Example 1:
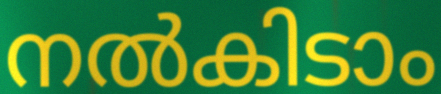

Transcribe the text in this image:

നൽകിടാം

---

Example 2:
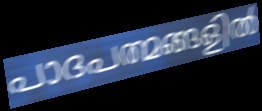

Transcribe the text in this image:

പാദപത്മങ്ങളിൽ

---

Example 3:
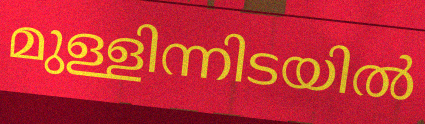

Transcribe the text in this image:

മുള്ളിന്നിടയിൽ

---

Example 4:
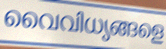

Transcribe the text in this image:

വൈവിധ്യങ്ങളെ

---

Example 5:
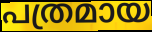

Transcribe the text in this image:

പത്രമായ